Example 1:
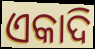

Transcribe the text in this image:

ଏକାଦି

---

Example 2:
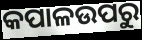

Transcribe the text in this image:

କପାଳଉପରୁ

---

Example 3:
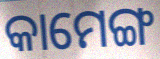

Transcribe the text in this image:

କାମେଙ୍ଗ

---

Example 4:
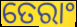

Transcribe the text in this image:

ତେରାଂ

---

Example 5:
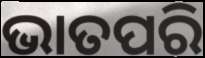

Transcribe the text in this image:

ଭାତପରି